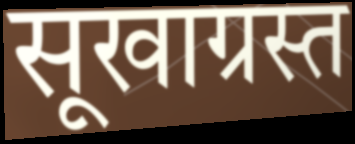
सूखाग्रस्‍त